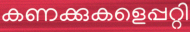
കണക്കുകളെപ്പറ്റി